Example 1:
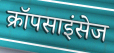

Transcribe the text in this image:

क्रॉपसाइंसेज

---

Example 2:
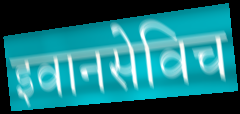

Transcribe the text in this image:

इवानसेविच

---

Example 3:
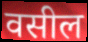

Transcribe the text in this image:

वसील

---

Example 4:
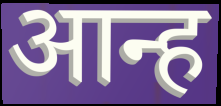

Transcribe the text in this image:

आन्ह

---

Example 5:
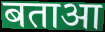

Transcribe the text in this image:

बताआ